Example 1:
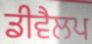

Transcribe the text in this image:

ਡੀਵੈਲਪ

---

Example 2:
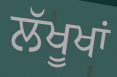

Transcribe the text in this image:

ਲੱਖੂਖਾਂ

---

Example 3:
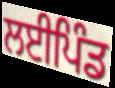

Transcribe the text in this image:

ਲਈਪਿੰਡ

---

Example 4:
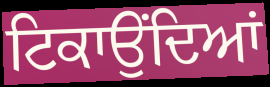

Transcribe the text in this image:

ਟਿਕਾਉਂਦਿਆਂ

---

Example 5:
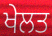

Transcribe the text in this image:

ਖੇਲਤ